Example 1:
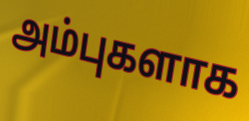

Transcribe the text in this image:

அம்புகளாக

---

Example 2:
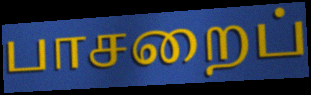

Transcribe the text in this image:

பாசறைப்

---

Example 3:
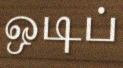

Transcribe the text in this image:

ஒடிப்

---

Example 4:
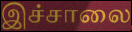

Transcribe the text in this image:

இச்சாலை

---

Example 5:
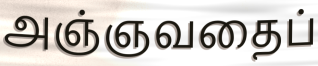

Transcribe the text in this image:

அஞ்ஞவதைப்